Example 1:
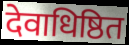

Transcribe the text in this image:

देवाधिष्ठित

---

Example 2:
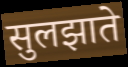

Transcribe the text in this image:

सुलझाते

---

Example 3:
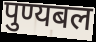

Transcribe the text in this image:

पुण्यबल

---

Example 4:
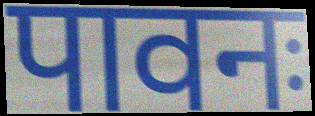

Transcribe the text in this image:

पावनः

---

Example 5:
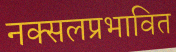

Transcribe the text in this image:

नक्सलप्रभावित